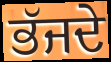
ਭੱਜਦੇ